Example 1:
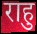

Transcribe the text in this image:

राहु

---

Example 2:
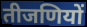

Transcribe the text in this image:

तीजणियों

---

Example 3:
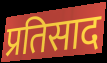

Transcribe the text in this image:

प्रतिसाद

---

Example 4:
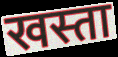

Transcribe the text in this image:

खस्ता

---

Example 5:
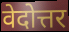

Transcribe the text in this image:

वेदोत्तर